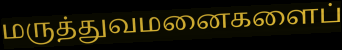
மருத்துவமனைகளைப்